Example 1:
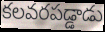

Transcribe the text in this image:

కలవరపడ్డాడు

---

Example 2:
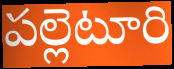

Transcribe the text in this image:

పల్లెటూరి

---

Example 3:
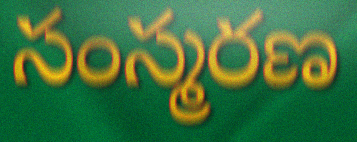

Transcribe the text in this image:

సంస్మరణ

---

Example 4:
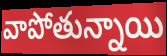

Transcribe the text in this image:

వాపోతున్నాయి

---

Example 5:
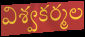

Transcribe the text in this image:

విశ్వకర్మల